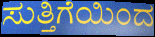
ಸುತ್ತಿಗೆಯಿಂದ